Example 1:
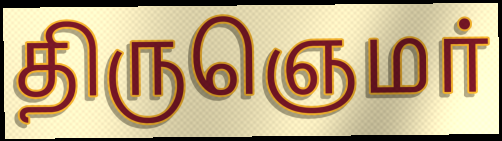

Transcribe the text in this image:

திருஞெமர்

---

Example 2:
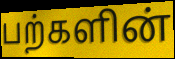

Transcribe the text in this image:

பற்களின்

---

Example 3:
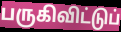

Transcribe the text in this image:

பருகிவிட்டுப்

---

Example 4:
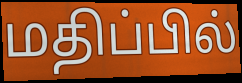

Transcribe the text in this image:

மதிப்பில்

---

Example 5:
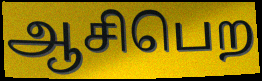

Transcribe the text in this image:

ஆசிபெற